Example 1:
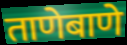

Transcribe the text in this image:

ताणेबाणे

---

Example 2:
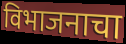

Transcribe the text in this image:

विभाजनाचा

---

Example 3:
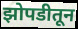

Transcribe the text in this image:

झोपडीतून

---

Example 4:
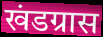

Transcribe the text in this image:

खंडग्रास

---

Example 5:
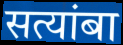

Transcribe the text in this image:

सत्यांबा